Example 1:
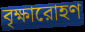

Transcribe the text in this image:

বৃক্ষারোহণ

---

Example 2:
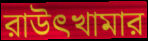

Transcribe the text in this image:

রাউৎখামার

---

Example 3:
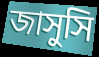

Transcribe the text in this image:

জাসুসি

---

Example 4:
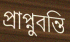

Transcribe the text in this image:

প্রাপ্নুবন্তি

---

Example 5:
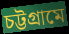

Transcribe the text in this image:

চট্টগ্রামে